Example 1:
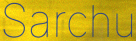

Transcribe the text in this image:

Sarchu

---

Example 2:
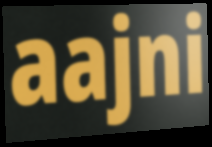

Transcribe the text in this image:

aajni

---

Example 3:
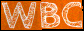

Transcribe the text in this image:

WBC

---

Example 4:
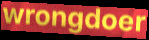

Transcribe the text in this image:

wrongdoer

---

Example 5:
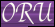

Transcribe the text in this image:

ORU